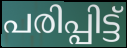
പരിപ്പിട്ട്